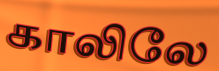
காலிலே